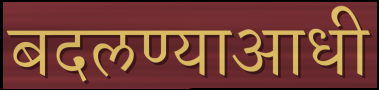
बदलण्याआधी